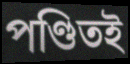
পণ্ডিতই